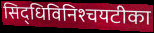
सिद्धिविनिश्चयटीका